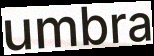
umbra